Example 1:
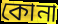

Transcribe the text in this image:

কোনা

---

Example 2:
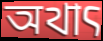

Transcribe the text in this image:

অথাৎ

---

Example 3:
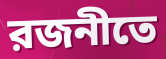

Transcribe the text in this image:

রজনীতে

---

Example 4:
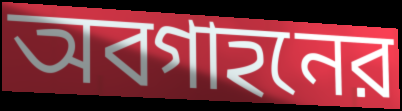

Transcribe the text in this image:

অবগাহনের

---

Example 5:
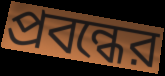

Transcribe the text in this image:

প্রবন্ধের